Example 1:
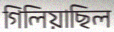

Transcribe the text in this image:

গিলিয়াছিল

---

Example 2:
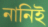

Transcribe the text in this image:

নানিই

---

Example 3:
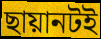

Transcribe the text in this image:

ছায়ানটই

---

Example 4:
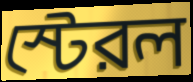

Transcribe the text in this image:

স্টেরল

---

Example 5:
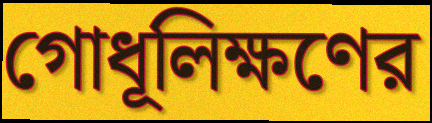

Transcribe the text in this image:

গোধূলিক্ষণের